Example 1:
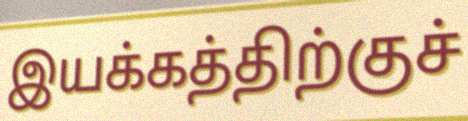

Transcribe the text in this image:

இயக்கத்திற்குச்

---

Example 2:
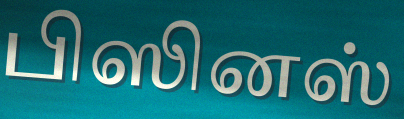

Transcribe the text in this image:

பிஸினஸ்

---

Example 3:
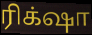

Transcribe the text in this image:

ரிக்‌ஷா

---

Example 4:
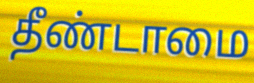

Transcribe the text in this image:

தீண்டாமை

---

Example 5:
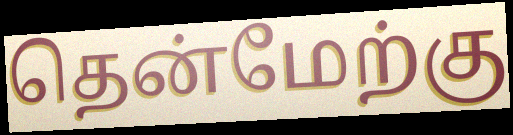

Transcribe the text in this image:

தென்மேற்கு